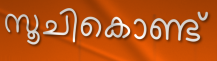
സൂചികൊണ്ട്